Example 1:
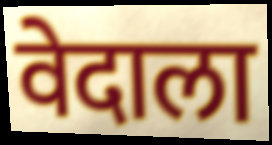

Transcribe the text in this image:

वेदाला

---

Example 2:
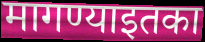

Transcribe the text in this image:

मागण्याइतका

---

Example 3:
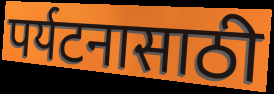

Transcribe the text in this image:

पर्यटनासाठी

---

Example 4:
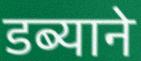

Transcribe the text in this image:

डब्याने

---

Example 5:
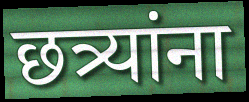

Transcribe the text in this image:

छत्र्यांना